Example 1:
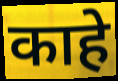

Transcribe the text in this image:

काहे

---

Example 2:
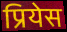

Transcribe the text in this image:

प्रियेस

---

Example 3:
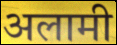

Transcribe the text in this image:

अलामी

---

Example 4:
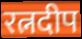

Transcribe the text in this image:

रत्नदीप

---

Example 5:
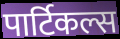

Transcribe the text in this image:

पार्टिकल्‍स